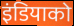
इंडियाको